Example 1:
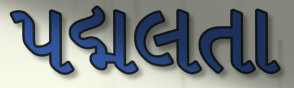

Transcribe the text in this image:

પદ્મલતા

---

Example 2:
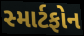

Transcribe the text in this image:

સ્માર્ટફોન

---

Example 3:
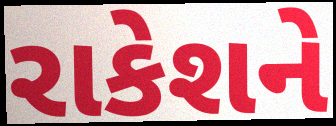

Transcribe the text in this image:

રાકેશને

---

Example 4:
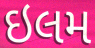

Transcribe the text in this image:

ઇલમ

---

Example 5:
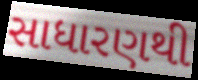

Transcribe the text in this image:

સાધારણથી